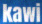
kawi